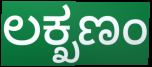
ಲಕ್ಖಣಂ